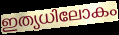
ഇത്യധിലോകം